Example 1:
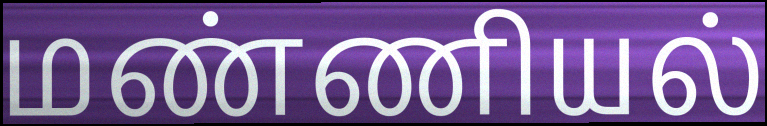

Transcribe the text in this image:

மண்ணியல்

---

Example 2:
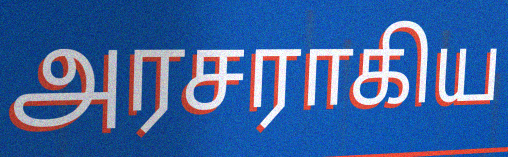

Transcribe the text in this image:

அரசராகிய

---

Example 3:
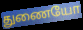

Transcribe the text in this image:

துணையோ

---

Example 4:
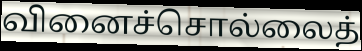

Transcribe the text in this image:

வினைச்சொல்லைத்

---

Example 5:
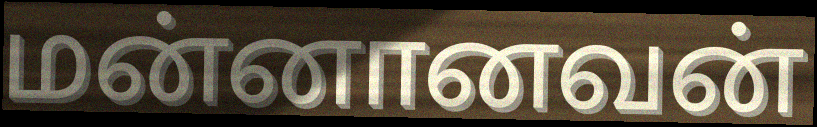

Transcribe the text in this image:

மன்னானவன்